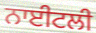
ਨਾਈਟਲੀ